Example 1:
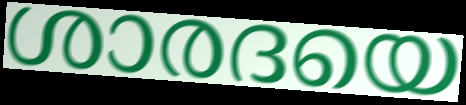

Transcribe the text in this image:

ശാരദയെ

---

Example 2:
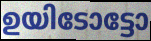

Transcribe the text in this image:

ഉയിടോട്ടോ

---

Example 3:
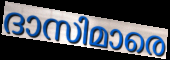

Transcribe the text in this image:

ദാസിമാരെ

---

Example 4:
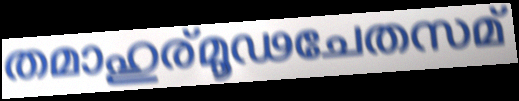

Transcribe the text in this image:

തമാഹുര്മൂഢചേതസമ്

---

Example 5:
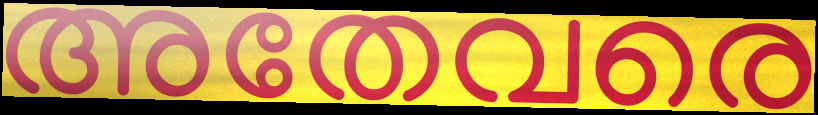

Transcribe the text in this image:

അതേവരെ